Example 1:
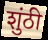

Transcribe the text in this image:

शुंठी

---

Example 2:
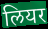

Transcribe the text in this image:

लियर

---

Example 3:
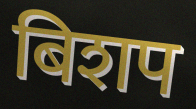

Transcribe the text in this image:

बिशप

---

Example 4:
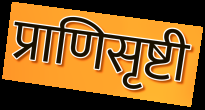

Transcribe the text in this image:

प्राणिसृष्टी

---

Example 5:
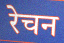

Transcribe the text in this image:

रेचन